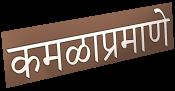
कमळाप्रमाणे